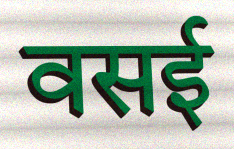
वसई